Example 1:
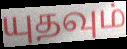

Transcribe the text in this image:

யுதவும்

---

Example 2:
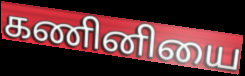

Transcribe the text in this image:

கணினியை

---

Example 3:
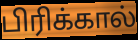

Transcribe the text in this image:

பிரிக்கால்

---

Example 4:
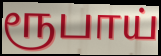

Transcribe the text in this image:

ரூபாய்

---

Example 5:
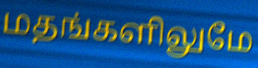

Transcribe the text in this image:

மதங்களிலுமே